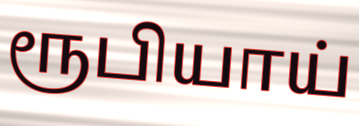
ரூபியாய்